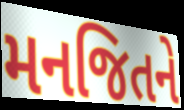
મનજિતને